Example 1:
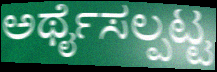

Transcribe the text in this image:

ಅರ್ಥೈಸಲ್ಪಟ್ಟ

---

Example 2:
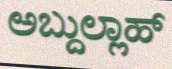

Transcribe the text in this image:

ಅಬ್ದುಲ್ಲಾಹ್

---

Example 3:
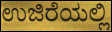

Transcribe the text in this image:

ಉಜಿರೆಯಲ್ಲಿ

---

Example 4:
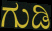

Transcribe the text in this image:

ಗುಡಿ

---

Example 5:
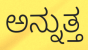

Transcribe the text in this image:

ಅನ್ನುತ್ತ